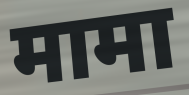
मामा